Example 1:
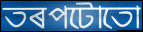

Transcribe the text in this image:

তৰপটোতো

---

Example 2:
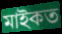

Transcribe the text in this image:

মাইকত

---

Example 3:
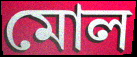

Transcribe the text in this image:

মোল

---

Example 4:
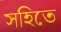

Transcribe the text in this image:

সহিতে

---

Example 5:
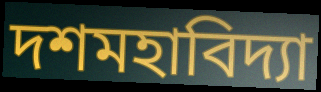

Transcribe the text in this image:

দশমহাবিদ্যা